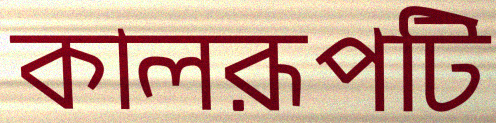
কালরূপটি